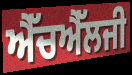
ਐੱਚਐੱਲਜੀ